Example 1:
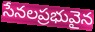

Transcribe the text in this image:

సేనలప్రభువైన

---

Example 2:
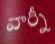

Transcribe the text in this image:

వార్నీ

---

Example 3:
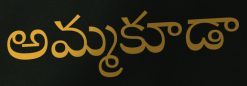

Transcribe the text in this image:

అమ్మకూడా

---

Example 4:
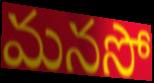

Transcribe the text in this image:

మనసో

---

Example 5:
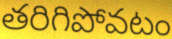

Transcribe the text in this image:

తరిగిపోవటం